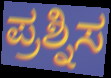
ಪ್ರಶ್ನಿಸ